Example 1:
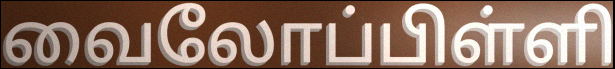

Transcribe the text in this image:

வைலோப்பிள்ளி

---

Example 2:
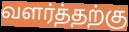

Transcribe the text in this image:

வளர்த்தற்கு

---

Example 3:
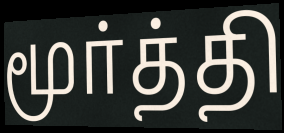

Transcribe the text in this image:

மூர்த்தி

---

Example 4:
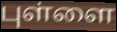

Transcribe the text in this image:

புள்ளை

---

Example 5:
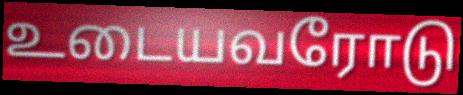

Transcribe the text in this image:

உடையவரோடு